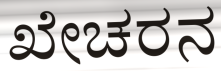
ಖೇಚರನ